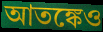
আতঙ্কেও